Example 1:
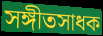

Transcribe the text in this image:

সঙ্গীতসাধক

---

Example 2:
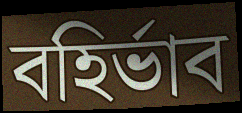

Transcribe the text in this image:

বহির্ভাব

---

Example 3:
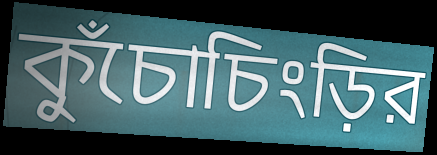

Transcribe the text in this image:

কুঁচোচিংড়ির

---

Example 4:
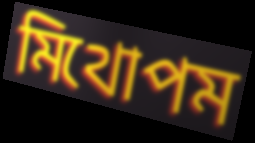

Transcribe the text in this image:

মিথোপম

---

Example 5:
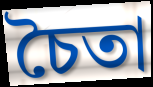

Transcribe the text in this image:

চৈতা